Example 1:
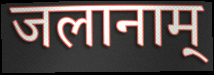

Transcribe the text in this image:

जलानाम्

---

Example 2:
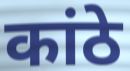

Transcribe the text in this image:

कांठे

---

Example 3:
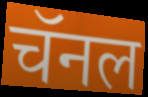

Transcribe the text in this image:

चॅनल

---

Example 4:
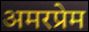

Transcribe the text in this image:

अमरप्रेम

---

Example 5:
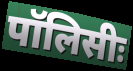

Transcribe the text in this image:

पॉलिसीः